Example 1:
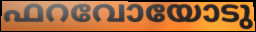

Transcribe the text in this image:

ഫറവോയോടു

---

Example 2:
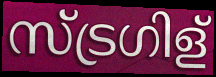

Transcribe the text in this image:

സ്ട്രഗിള്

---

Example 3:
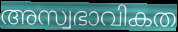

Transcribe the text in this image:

അസ്വഭാവികത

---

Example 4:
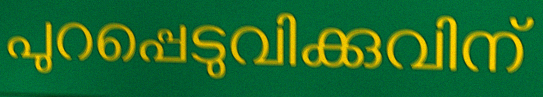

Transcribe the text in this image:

പുറപ്പെടുവിക്കുവിന്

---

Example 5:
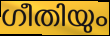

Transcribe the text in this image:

ഗീതിയും